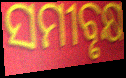
ସମୀବୃକ୍ଷ